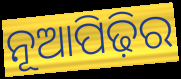
ନୂଆପିଢ଼ିର